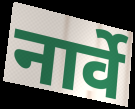
नार्वे